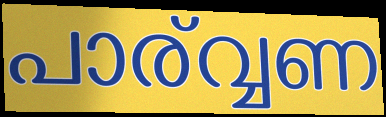
പാര്വ്വണ